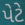
પેટે